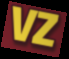
VZ